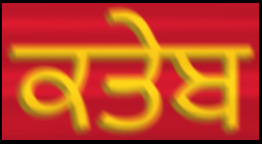
ਕਤੇਬ